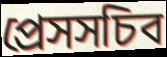
প্রেসসচিব